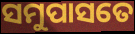
ସମୁପାସତେ